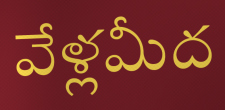
వేళ్లమీద